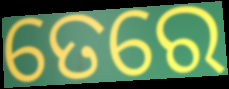
ତେରେ